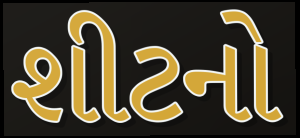
શીટનો